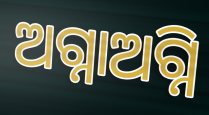
ଅଗ୍ନାଅଗ୍ନି